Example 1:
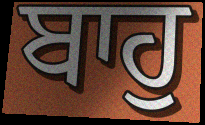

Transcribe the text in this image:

ਬਾਹੁ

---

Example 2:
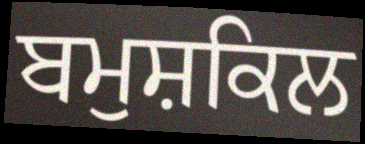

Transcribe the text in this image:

ਬਮੁਸ਼ਕਿਲ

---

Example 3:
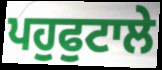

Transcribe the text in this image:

ਪਹੁਫੁਟਾਲੇ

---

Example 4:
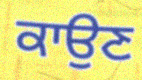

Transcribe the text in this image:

ਕਾਉਣ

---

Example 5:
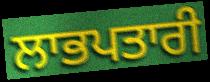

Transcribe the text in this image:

ਲਾਭਪਤਾਰੀ